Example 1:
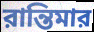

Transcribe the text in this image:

রান্তিমার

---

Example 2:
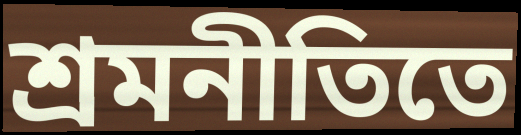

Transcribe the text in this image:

শ্রমনীতিতে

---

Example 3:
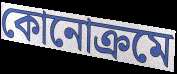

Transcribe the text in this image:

কোনোক্রমে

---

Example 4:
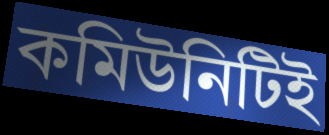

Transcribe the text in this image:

কমিউনিটিই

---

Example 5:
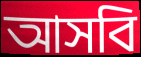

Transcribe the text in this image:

আসবি